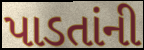
પાડતાંની